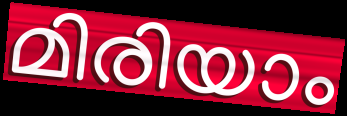
മിരിയാം